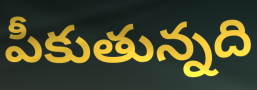
పీకుతున్నది